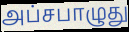
அப்சபாழுது